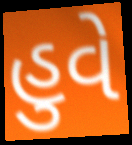
હુવે